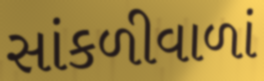
સાંકળીવાળાં